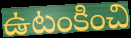
ఉటంకించి